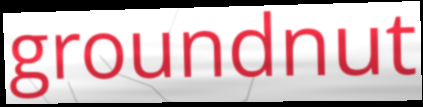
groundnut